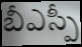
బీఎస్పీ